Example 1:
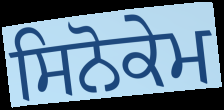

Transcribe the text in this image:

ਸਿਨੋਕੇਮ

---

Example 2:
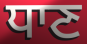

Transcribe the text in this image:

ਧਾਣ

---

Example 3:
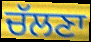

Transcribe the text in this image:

ਚੱਲਣਾ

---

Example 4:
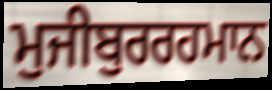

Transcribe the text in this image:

ਮੁਜੀਬੁਰਰਹਮਾਨ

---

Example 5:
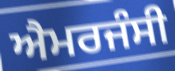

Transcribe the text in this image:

ਐਮਰਜੰਸੀ